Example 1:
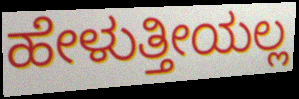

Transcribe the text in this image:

ಹೇಳುತ್ತೀಯಲ್ಲ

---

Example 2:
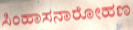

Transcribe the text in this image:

ಸಿಂಹಾಸನಾರೋಹಣ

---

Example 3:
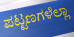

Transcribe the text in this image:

ಪಟ್ಟಣಗಳೆಲ್ಲಾ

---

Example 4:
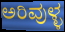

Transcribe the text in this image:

ಅರಿವುಳ್ಳ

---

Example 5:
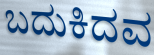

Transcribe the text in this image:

ಬದುಕಿದವ